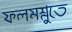
ফলমশ্নুতে